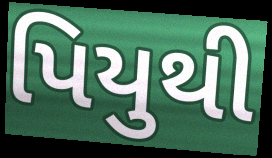
પિયુથી